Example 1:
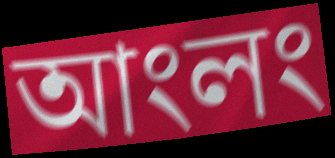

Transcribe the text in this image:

আংলং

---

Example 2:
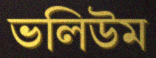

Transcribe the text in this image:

ভলিউম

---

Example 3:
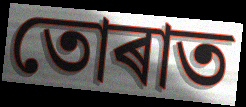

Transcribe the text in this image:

তোৰাত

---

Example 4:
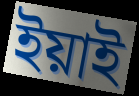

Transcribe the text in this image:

ইয়াই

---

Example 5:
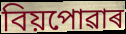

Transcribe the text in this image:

বিয়পোৱাৰ